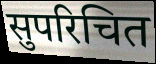
सुपरिचित